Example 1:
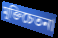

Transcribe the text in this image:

মুক্তিচেতনা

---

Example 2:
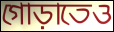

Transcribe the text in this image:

গোড়াতেও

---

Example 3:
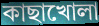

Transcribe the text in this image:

কাছাখোলা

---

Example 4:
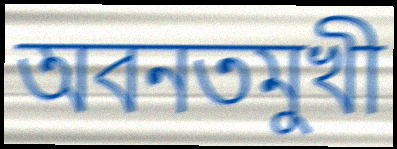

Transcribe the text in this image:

অবনতমুখী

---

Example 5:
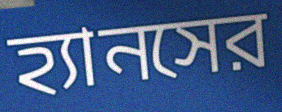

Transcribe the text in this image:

হ্যানসের